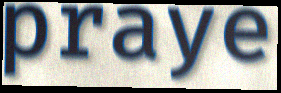
praye